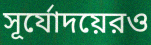
সূর্যোদয়েরও